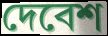
দেবেশ